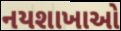
નયશાખાઓ